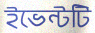
ইভেন্টটি